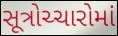
સૂત્રોચ્ચારોમાં